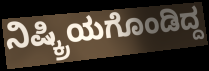
ನಿಷ್ಕ್ರಿಯಗೊಂಡಿದ್ದ